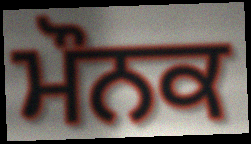
ਮੌਨਕ